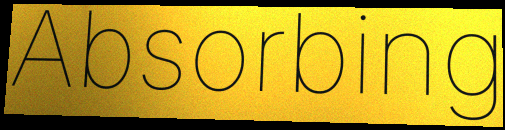
Absorbing